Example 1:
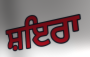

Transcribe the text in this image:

ਸ਼ਇਰਾ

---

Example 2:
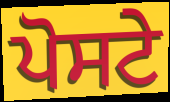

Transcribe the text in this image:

ਪੋਸਟੇ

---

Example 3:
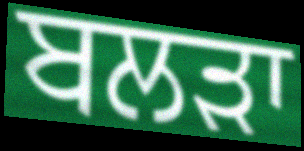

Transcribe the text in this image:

ਬਲੜਾ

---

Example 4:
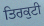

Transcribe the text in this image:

ਤਿਰਕੁਟੀ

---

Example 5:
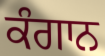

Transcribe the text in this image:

ਕੰਗਾਨ